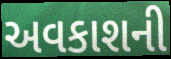
અવકાશની